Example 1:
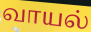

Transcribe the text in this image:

வாயல்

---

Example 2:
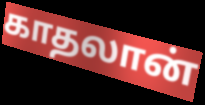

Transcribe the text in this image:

காதலான்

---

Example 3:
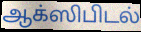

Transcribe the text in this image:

ஆக்ஸிபிடல்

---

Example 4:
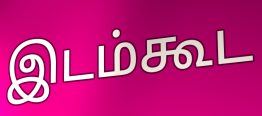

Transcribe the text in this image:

இடம்கூட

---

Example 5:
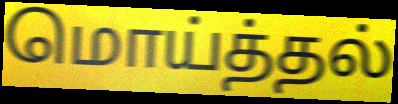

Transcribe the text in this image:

மொய்த்தல்